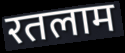
रतलाम